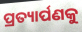
ପ୍ରତ୍ୟାର୍ପଣକୁ